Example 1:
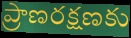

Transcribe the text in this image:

ప్రాణరక్షణకు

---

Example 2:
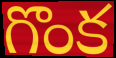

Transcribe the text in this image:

గొంక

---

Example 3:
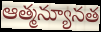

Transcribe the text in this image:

ఆత్మన్యూనత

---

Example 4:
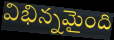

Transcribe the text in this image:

విభిన్నమైంది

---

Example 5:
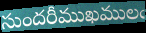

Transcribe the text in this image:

సుందరీముఖములఁ